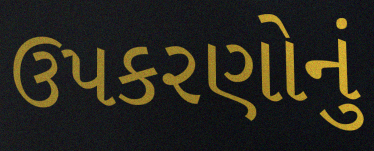
ઉપકરણોનું